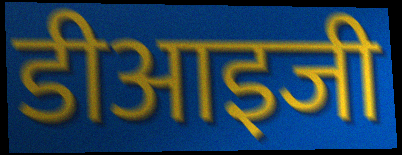
डीआइजी